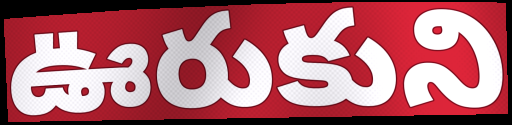
ఊరుకుని